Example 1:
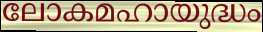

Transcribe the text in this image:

ലോകമഹായുദ്ധം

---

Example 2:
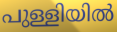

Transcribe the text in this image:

പുള്ളിയിൽ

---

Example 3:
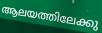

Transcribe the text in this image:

ആലയത്തിലേക്കു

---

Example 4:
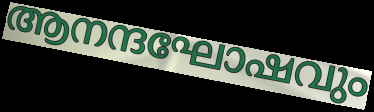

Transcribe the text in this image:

ആനന്ദഘോഷവും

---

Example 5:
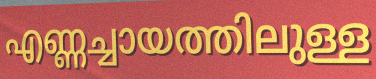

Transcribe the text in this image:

എണ്ണച്ചായത്തിലുള്ള